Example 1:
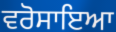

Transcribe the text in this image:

ਵਰੋਸਾਇਆ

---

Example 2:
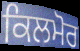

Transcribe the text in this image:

ਕਿਲਮੋਰ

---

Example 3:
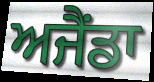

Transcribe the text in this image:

ਅਜੈਂਡਾ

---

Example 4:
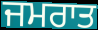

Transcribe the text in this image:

ਜਮਰਾਤ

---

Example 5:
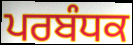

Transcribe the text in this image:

ਪਰਬੰਧਕ